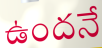
ఉందనే